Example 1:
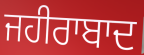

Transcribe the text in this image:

ਜਹੀਰਾਬਾਦ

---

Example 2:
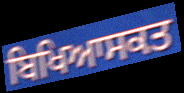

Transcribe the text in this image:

ਬਿਖਿਆਸਕਤ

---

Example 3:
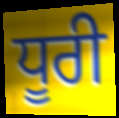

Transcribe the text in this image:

ਧੂਰੀ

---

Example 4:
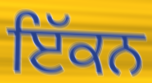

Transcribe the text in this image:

ਇੱਕਨ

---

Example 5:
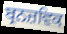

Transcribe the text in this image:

ਬ੍ਰਨਜ਼ਵਿਕ